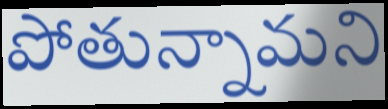
పోతున్నామని